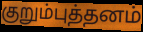
குறும்புத்தனம்